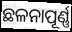
ଛଳନାପୂର୍ଣ୍ଣ